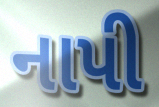
નાપી